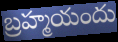
బ్రహ్మయందు